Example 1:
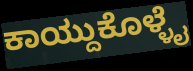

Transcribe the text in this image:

ಕಾಯ್ದುಕೊಳ್ಳೈ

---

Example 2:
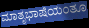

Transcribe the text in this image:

ಮಾತೃಭಾಷೆಯಂತೂ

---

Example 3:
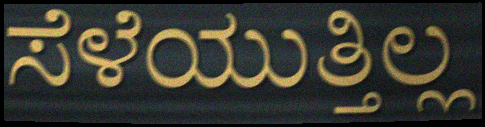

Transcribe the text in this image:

ಸೆಳೆಯುತ್ತಿಲ್ಲ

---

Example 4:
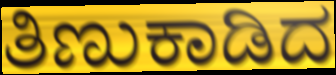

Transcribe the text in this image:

ತಿಣುಕಾಡಿದ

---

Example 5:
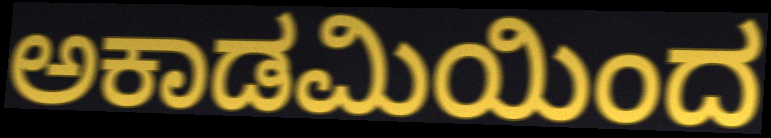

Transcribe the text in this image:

ಅಕಾಡಮಿಯಿಂದ